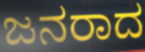
ಜನರಾದ